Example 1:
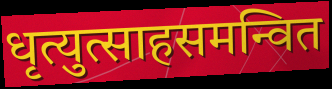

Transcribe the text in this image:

धृत्युत्साहसमन्वित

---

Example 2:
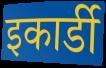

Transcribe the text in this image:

इकार्डी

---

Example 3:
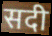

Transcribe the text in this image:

सदी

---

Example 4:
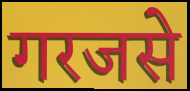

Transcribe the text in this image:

गरजसे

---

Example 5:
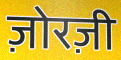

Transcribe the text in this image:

ज़ोरज़ी